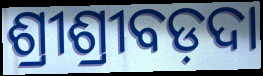
ଶ୍ରୀଶ୍ରୀବଡ଼ଦା